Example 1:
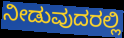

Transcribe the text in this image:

ನೀಡುವುದರಲ್ಲಿ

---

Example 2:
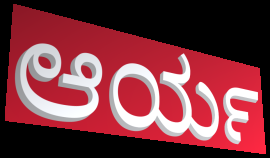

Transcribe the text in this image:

ಆರ್ಯ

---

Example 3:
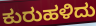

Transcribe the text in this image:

ಕುರುಹಳಿದು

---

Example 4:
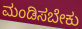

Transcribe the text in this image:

ಮಂಡಿಸಬೇಕು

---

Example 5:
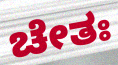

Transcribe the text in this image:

ಚೇತಃ